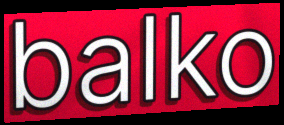
balko